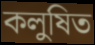
কলুষিত